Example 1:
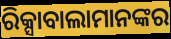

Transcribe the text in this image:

ରିକ୍ସାବାଲାମାନଙ୍କର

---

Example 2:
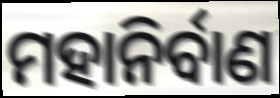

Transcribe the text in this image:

ମହାନିର୍ବାଣ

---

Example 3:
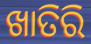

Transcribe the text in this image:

ଖାତିରି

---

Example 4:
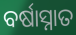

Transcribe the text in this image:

ବର୍ଷାସ୍ନାତ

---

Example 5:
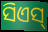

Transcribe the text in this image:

ସିଏସ୍